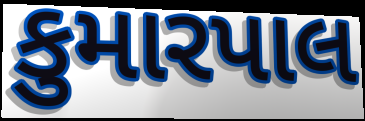
કુમારપાલ